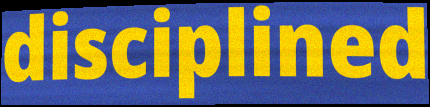
disciplined